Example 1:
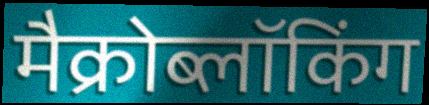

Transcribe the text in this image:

मैक्रोब्लॉकिंग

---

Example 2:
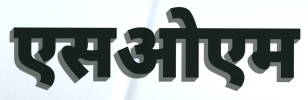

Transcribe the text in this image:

एसओएम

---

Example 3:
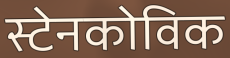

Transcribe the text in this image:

स्टेनकोविक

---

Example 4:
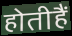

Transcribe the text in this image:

होतीहैं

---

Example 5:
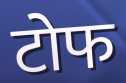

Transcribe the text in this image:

टोफ